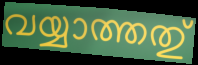
വയ്യാത്തതു്